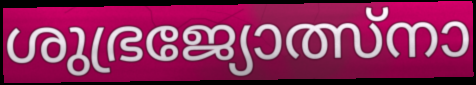
ശുഭ്രജ്യോത്സ്നാ